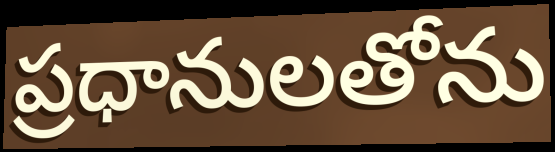
ప్రధానులతోను